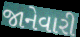
જાનેવારી